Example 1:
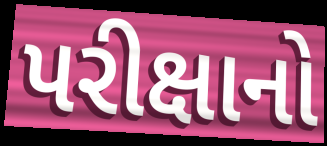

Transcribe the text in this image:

પરીક્ષાનો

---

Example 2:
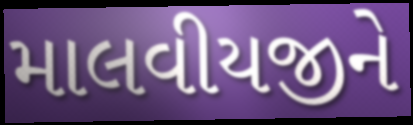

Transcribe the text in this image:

માલવીયજીને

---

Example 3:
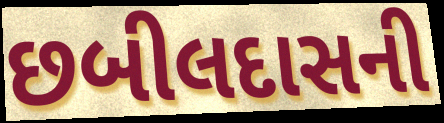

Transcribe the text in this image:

છબીલદાસની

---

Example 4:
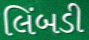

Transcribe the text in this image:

લિંબડી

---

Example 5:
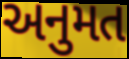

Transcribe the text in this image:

અનુમત